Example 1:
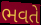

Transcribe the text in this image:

ભવતે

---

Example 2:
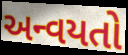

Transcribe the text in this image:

અન્વયતો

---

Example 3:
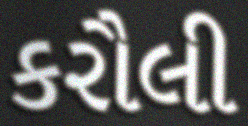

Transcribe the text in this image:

કરૌલી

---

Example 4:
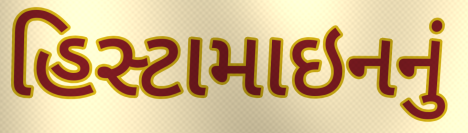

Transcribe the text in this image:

હિસ્ટામાઇનનું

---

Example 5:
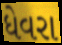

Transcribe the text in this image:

ધેવરા